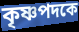
কৃষ্ণপদকে